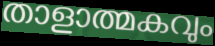
താളാത്മകവും